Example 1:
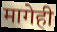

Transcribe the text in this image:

मागेही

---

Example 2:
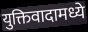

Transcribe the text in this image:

युक्तिवादामध्ये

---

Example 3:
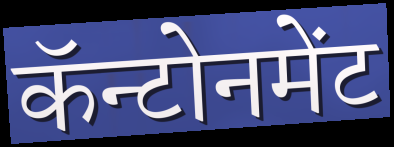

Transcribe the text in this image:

कॅन्टोनमेंट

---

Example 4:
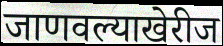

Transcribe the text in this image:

जाणवल्याखेरीज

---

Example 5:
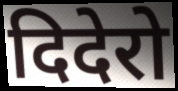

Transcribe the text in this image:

दिदेरो